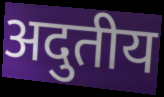
अदुतीय